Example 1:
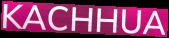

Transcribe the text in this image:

KACHHUA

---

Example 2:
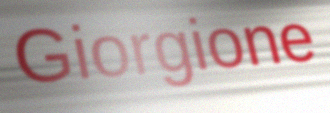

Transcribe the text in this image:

Giorgione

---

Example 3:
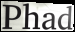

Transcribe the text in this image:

Phad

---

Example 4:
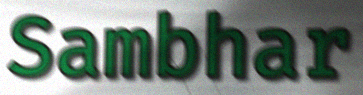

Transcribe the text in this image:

Sambhar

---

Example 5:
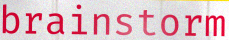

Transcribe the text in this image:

brainstorm